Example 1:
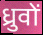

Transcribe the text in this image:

ध्रुवों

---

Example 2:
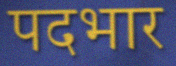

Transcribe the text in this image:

पदभार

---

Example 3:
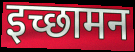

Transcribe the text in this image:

इच्छामन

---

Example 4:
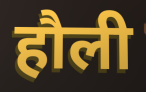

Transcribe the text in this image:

हौली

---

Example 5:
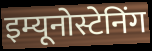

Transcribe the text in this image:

इम्यूनोस्टेनिंग